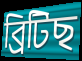
ব্ৰিটিছ